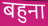
बहुना